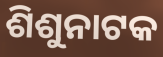
ଶିଶୁନାଟକ